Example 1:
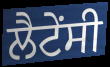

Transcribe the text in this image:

ਲੈਟੇਂਸੀ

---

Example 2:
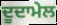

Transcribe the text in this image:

ਦੂਦਾਮੇਲ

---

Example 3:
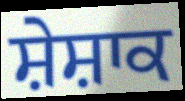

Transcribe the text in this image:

ਸ਼ੇਸ਼ਾਕ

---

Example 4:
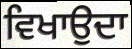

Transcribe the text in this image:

ਵਿਖਾਉਦਾ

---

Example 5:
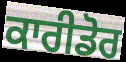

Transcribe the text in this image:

ਕਾਰੀਡੋਰ